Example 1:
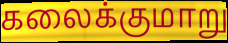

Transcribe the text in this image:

கலைக்குமாறு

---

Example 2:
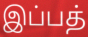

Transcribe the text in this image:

இப்பத்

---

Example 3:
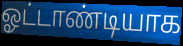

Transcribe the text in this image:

ஓட்டாண்டியாக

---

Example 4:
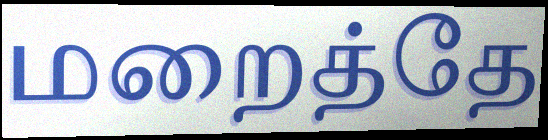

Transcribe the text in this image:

மறைத்தே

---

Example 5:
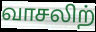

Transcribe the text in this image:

வாசலிற்